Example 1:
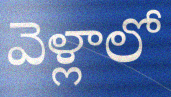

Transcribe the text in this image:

వెళ్లాలో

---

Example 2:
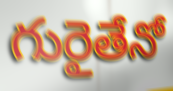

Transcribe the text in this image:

గురైతేనో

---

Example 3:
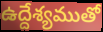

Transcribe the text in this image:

ఉద్దేశ్యముతో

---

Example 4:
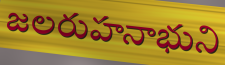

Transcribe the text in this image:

జలరుహనాభుని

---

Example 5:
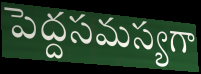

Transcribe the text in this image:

పెద్దసమస్యగా